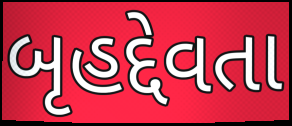
બૃહદ્દેવતા